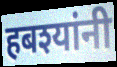
हबश्यांनी